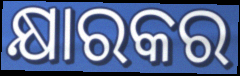
କ୍ଷାରକର